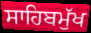
ਸਾਹਿਬਮੁੱਖ